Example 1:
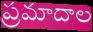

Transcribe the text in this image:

ప్రమాదాల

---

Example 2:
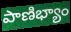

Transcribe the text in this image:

పాణిభ్యాం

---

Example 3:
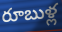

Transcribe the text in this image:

రూబుళ్ల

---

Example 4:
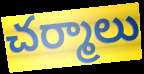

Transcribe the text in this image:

చర్మాలు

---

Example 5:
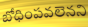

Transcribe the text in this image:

బోధింపవలెనని